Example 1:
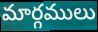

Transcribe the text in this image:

మార్గములు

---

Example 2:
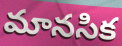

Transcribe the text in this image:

మానసిక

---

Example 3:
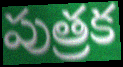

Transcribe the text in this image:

పుత్రక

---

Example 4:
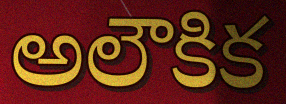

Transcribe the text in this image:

అలౌకిక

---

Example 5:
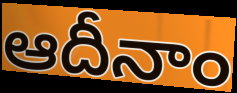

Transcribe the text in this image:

ఆదీనాం